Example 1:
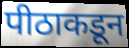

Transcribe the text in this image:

पीठाकडून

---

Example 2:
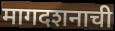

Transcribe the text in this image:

मागदशनाची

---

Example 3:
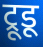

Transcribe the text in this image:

ट्रूडू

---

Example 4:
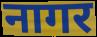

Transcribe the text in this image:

नागर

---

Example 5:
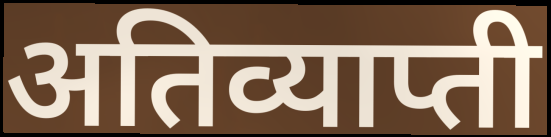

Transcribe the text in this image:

अतिव्याप्ती